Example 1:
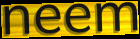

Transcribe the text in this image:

neem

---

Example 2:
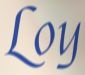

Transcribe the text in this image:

Loy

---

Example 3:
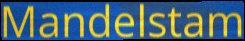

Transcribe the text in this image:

Mandelstam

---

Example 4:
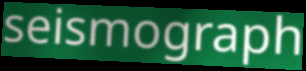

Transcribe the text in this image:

seismograph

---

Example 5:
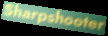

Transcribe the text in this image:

Sharpshooter